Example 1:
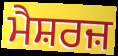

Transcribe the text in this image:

ਮੈਸ਼ਰਜ਼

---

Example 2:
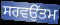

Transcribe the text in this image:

ਸਰਵਉੱਤਮ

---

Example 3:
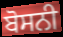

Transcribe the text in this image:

ਬੋਸਨੀ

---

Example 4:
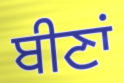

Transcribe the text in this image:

ਬੀਣਾਂ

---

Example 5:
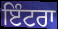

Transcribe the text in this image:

ਇੰਟਰਾ